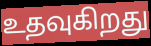
உதவுகிறது